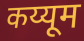
कय्यूम